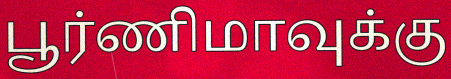
பூர்ணிமாவுக்கு